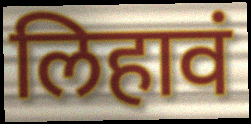
लिहावं